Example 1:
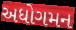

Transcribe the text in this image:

અધોગમન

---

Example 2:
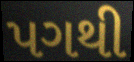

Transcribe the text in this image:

પગથી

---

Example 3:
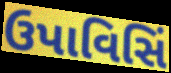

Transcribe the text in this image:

ઉપાવિસિં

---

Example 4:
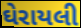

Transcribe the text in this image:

ઘેરાયલી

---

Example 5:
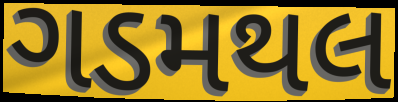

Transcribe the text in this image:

ગડમથલ